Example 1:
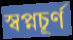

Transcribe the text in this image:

স্বপ্নচূর্ণ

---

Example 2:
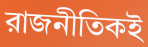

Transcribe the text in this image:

রাজনীতিকই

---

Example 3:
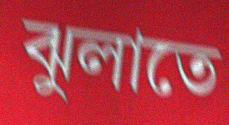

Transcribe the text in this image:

ঝুলাতে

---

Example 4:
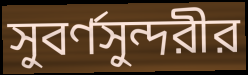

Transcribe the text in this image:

সুবর্ণসুন্দরীর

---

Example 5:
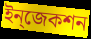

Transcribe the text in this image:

ইন্‌জেকশন